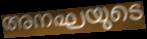
അനഘയുടെ